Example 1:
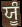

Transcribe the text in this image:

ਯੂੰ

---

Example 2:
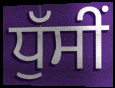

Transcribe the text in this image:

ਧੁੱਸੀਂ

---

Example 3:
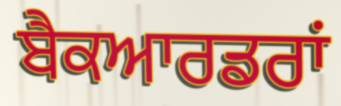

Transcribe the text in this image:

ਬੈਕਆਰਡਰਾਂ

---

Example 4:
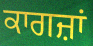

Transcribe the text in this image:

ਕਾਗਜ਼ਾਂ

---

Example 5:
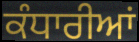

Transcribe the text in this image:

ਕੰਧਾਰੀਆਂ